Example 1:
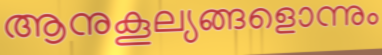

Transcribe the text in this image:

ആനുകൂല്യങ്ങളൊന്നും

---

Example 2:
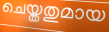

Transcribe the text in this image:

ചെയ്തതുമായ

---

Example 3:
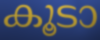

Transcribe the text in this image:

കൂടാ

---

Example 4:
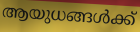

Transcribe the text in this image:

ആയുധങ്ങൾക്ക്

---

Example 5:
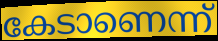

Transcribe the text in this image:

കേടാണെന്ന്